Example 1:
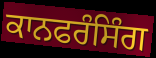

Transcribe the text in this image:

ਕਾਨਫਰੰਸਿੰਗ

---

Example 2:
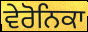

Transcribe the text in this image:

ਵੇਰੋਨਿਕਾ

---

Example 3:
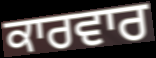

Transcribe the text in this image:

ਕਾਰਵਾਰ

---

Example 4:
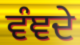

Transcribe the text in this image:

ਵੰਞਦੇ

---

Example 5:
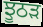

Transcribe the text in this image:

ਝੂਠੜ